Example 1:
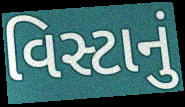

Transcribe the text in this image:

વિસ્ટાનું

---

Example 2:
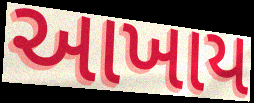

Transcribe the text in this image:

આખાય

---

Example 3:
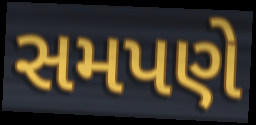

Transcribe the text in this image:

સમપણે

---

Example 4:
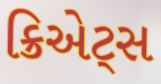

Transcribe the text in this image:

ક્રિએટ્સ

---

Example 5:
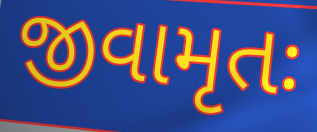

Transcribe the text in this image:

જીવામૃતઃ